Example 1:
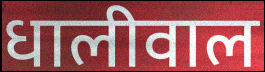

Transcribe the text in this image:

धालीवाल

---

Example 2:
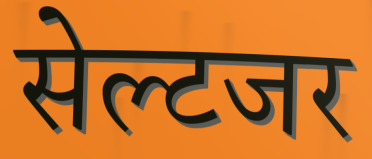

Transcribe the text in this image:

सेल्टजर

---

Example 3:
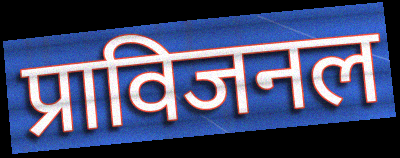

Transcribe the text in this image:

प्राविजनल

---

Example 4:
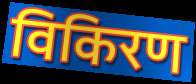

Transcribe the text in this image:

विकिरण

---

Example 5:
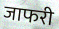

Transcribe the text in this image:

जाफरी